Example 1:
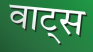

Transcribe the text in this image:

वाट्स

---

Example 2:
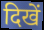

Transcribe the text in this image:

दिखें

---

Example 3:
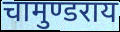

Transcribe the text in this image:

चामुण्डराय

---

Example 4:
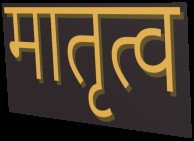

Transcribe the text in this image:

मातृत्व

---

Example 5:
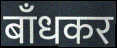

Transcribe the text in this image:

बाँधकर